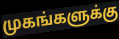
முகங்களுக்கு